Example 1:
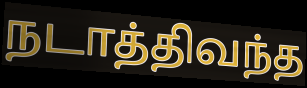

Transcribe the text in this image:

நடாத்திவந்த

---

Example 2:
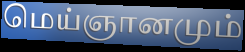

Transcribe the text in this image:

மெய்ஞானமும்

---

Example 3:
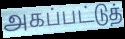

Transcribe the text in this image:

அகப்பட்டுத்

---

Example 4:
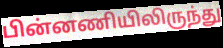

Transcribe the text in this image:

பின்னணியிலிருந்து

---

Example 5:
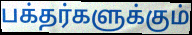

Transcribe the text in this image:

பக்தர்களுக்கும்